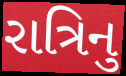
રાત્રિનુ